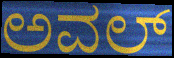
ಅವಲ್